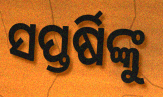
ସପ୍ତର୍ଷିଙ୍କୁ